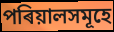
পৰিয়ালসমূহে